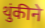
थुंकीने